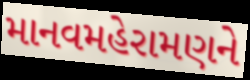
માનવમહેરામણને